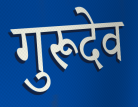
गुरूदेव